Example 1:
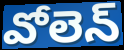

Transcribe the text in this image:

వోలెన్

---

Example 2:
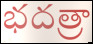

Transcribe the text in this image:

భదత్రా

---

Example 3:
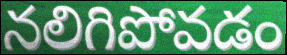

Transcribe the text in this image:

నలిగిపోవడం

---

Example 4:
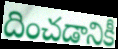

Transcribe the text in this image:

దించడానికీ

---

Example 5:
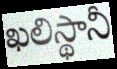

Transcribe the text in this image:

ఖలిస్థానీ